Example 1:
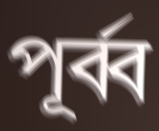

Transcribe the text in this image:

পূর্ব্ব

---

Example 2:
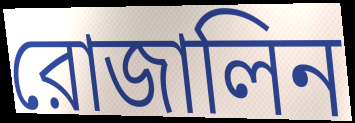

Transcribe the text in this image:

রোজালিন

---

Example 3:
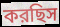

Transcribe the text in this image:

করছিস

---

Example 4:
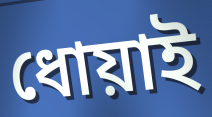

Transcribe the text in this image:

ধোয়াই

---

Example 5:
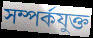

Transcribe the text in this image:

সম্পর্কযুক্ত